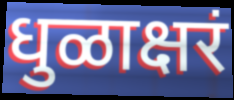
धुळाक्षरं